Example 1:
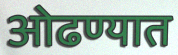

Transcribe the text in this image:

ओढण्यात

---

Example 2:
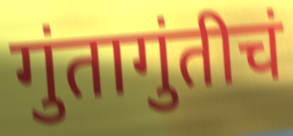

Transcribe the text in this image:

गुंतागुंतीचं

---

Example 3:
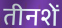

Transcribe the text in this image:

तीनशें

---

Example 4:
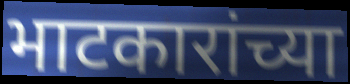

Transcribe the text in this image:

भाटकारांच्या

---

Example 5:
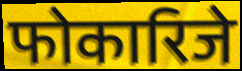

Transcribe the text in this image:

फोकारिजे